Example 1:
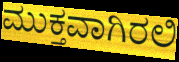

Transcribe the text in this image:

ಮುಕ್ತವಾಗಿರಲಿ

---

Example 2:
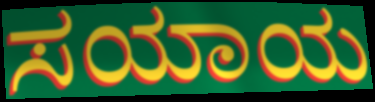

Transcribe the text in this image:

ಸಯಾಯ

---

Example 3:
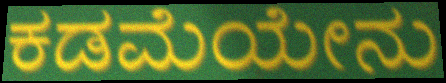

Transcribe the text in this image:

ಕಡಮೆಯೇನು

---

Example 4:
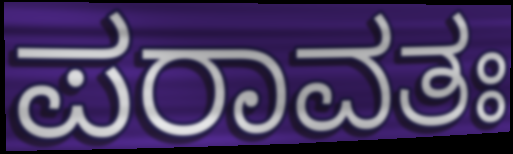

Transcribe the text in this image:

ಪರಾವತಃ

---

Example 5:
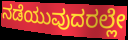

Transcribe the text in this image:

ನಡೆಯುವುದರಲ್ಲೇ